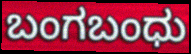
ಬಂಗಬಂಧು